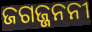
ଜଗଜ୍ଜନନୀ